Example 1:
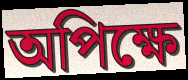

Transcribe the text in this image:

অপিক্ষে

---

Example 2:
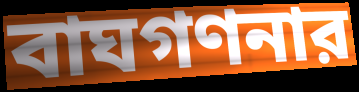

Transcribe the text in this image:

বাঘগণনার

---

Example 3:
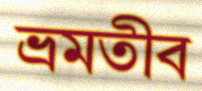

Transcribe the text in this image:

ভ্রমতীব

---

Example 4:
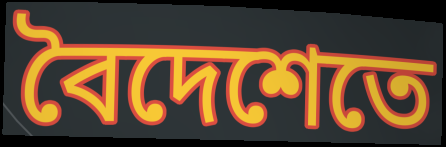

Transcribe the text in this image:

বৈদেশেতে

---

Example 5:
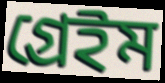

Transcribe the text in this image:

গ্রেইম